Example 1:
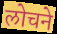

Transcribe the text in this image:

लोचने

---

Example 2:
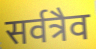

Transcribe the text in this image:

सर्वत्रैव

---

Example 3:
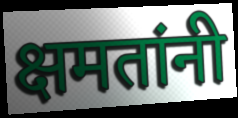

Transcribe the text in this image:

क्षमतांनी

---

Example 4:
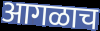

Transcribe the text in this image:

आगळाच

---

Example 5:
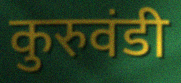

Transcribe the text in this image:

कुरुवंडी